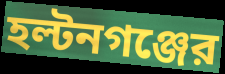
হল্টনগঞ্জের